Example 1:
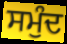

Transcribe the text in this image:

ਸਮੁੰਦ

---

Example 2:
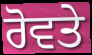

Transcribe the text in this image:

ਰੋਵਤੇ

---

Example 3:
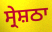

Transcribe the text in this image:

ਸ੍ਰੇਸ਼ਠਾ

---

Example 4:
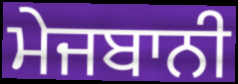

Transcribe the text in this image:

ਮੇਜਬਾਨੀ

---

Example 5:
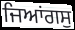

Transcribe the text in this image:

ਜਿਆਂਗਸੁ